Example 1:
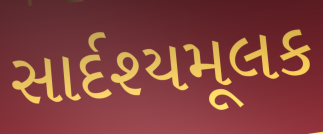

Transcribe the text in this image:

સાર્દશ્યમૂલક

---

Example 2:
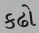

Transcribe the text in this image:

કઢો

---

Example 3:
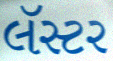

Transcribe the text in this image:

લૅસ્ટર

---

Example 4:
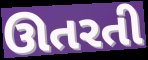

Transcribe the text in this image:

ઊતરતી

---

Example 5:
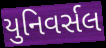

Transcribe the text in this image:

યુનિવર્સલ